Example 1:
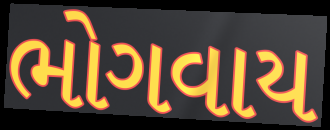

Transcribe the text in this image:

ભોગવાય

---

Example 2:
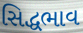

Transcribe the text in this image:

સિદ્ધભાવ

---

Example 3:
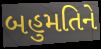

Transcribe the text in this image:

બહુમતિને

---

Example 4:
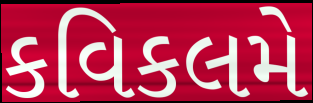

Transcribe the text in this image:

કવિકલમે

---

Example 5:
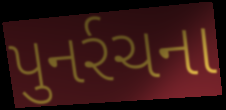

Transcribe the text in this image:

પુનર્રચના